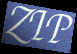
ZIP